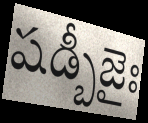
షడ్బీజైః